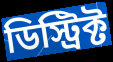
ডিস্ট্রিক্ট